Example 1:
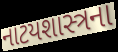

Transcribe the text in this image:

નાટયશાસ્ત્રના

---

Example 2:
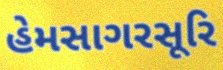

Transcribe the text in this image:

હેમસાગરસૂરિ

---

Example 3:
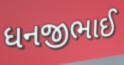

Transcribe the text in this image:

ધનજીભાઈ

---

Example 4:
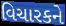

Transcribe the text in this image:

વિચારકને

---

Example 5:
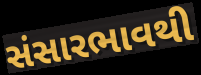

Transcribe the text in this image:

સંસારભાવથી